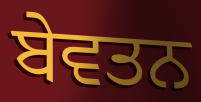
ਬੇਵਤਨ